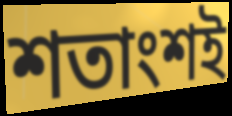
শতাংশই